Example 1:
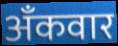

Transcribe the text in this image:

अँकवार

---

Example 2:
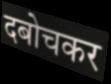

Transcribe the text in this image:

दबोचकर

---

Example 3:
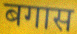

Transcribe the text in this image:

बगास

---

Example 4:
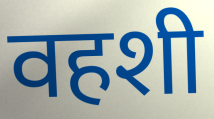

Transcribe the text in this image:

वहशी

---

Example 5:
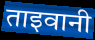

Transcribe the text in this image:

ताइवानी